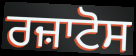
ਰਜ਼ਾਟੋਸ